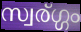
സ്വര്ഗ്ഗം